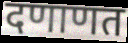
दणाणत